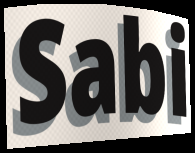
Sabi